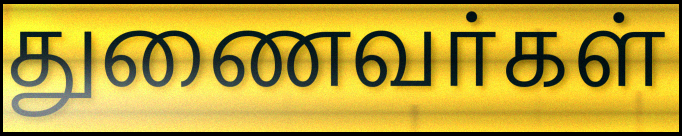
துணைவர்கள்